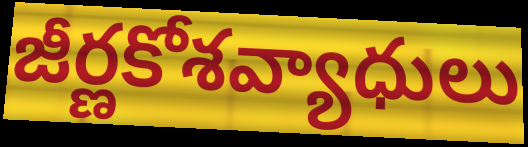
జీర్ణకోశవ్యాధులు